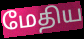
மேதிய